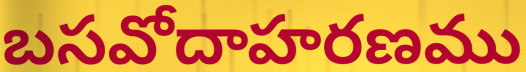
బసవోదాహరణము